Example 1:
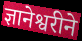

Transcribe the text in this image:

ज्ञानेश्वरीने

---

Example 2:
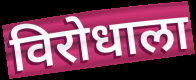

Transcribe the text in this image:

विरोधाला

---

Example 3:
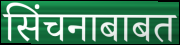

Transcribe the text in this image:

सिंचनाबाबत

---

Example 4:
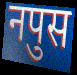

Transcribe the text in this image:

नपुस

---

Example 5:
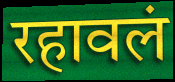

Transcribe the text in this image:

रहावलं